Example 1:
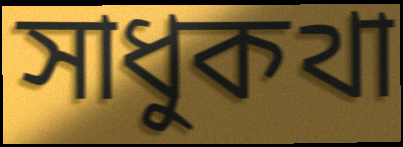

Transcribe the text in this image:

সাধুকথা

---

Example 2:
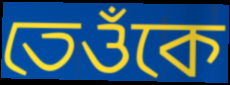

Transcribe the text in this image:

তেওঁকে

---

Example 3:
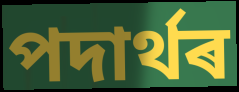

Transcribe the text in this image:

পদাৰ্থৰ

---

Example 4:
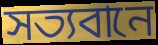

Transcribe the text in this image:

সত্যবানে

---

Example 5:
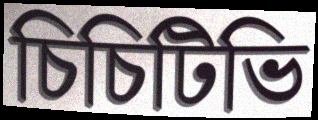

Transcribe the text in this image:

চিচিটিভি